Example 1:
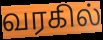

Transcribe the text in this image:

வரகில்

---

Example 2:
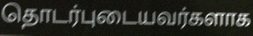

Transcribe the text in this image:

தொடர்புடையவர்களாக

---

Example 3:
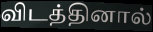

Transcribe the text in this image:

விடத்தினால்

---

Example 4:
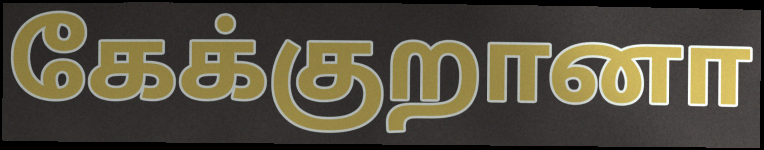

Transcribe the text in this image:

கேக்குறானா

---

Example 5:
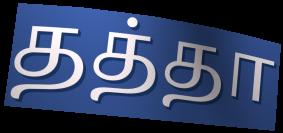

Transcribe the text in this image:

தத்தா